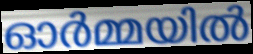
ഓർമ്മയിൽ